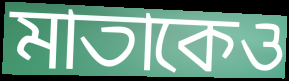
মাতাকেও